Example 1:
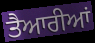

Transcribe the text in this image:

ਤੈਆਰੀਆਂ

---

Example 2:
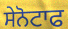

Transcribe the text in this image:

ਸੇਨੋਟਾਫ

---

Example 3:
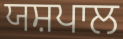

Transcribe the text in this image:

ਯਸ਼ਪਾਲ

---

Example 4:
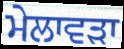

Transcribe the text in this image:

ਮੇਲਾਵੜਾ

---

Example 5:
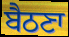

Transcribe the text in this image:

ਬੈਠਣਾ